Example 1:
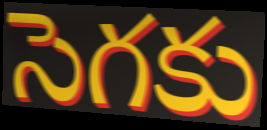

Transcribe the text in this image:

సెగకు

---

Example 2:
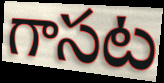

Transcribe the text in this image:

గాసట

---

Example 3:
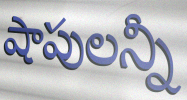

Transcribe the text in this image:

షాపులన్నీ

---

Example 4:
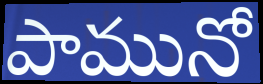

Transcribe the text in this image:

పామునో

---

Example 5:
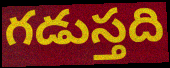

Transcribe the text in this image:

గడుస్తది